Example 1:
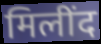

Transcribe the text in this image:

मिलींद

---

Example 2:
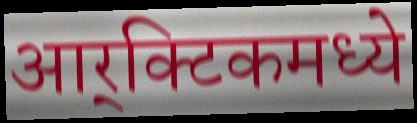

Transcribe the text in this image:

आर्क्टिकमध्ये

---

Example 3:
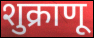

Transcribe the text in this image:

शुक्राणू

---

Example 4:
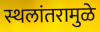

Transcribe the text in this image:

स्थलांतरामुळे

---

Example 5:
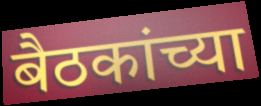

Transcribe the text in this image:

बैठकांच्या